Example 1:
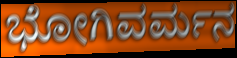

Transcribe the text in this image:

ಭೋಗಿವರ್ಮನ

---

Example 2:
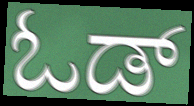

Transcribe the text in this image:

ಓಡ್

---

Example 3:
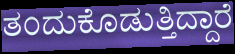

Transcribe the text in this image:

ತಂದುಕೊಡುತ್ತಿದ್ದಾರೆ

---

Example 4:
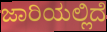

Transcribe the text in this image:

ಜಾರಿಯಲ್ಲಿದೆ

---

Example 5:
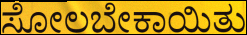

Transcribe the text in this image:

ಸೋಲಬೇಕಾಯಿತು